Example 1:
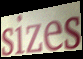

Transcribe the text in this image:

sizes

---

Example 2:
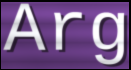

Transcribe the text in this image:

Arg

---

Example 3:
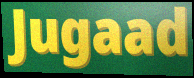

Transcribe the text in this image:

Jugaad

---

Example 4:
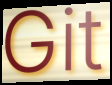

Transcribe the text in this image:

Git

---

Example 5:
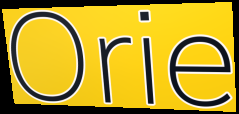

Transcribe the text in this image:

Orie